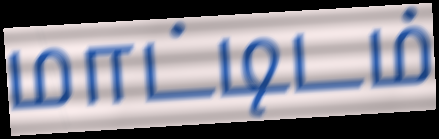
மாட்டிடம்